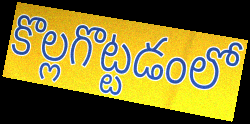
కొల్లగొట్టడంలో